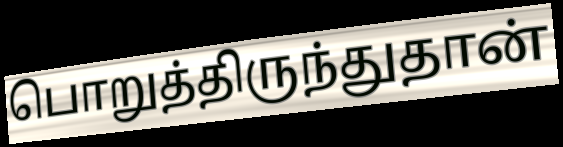
பொறுத்திருந்துதான்